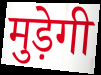
मुड़ेगी